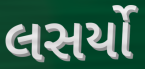
લસર્યો